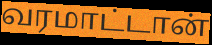
வரமாட்டான்